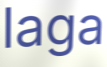
laga